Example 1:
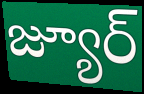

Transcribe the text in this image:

జ్యూర్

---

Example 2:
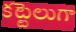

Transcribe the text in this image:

కట్టెలుగా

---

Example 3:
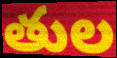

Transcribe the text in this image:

తుల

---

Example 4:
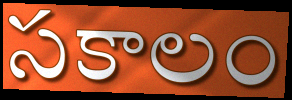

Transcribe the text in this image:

సకాలం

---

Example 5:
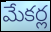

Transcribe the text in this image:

మేకర్ల